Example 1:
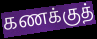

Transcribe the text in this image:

கணக்குத்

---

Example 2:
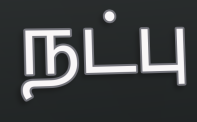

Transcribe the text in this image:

நட்பு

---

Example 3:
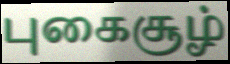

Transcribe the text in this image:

புகைசூழ்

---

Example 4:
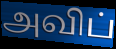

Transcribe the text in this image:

அவிப்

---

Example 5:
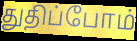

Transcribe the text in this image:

துதிப்போம்